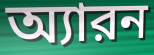
অ্যারন